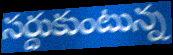
సర్దుకుంటున్న